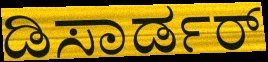
ಡಿಸಾರ್ಡರ್